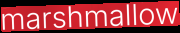
marshmallow